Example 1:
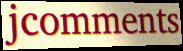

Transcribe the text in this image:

jcomments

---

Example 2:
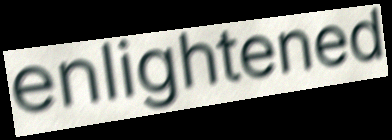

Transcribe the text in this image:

enlightened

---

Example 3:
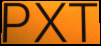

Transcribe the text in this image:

PXT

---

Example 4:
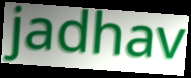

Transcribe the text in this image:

jadhav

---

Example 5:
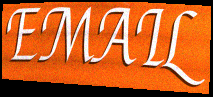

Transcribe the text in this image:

EMAIL